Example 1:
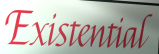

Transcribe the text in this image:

Existential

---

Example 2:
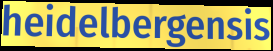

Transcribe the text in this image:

heidelbergensis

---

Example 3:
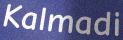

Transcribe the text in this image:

Kalmadi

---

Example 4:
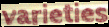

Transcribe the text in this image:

varieties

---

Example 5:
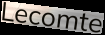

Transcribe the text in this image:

Lecomte